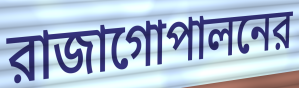
রাজাগোপালনের